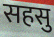
सहसु